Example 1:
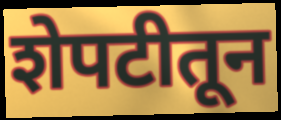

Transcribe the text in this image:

शेपटीतून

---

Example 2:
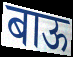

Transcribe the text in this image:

बाऊ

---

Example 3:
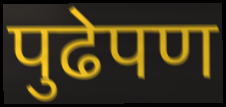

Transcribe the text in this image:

पुढेपण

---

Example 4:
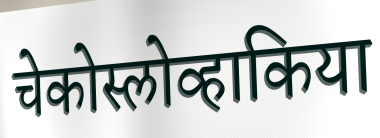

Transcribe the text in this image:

चेकोस्लोव्हाकिया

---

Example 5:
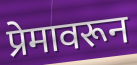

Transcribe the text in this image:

प्रेमावरून